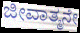
ಜೀವಾತ್ಮನೇ